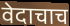
वेदाचाच